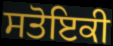
ਸਤੋਇਕੀ